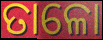
ତାଳୋ